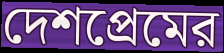
দেশপ্রেমের